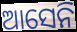
ଆସେନି